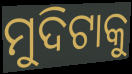
ମୁଦିଟାକୁ